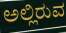
ಅಲ್ಲಿರುವ